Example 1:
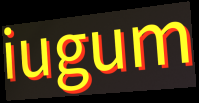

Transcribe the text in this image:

iugum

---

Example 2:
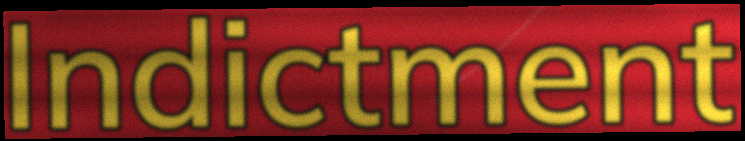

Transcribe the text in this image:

Indictment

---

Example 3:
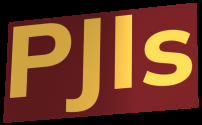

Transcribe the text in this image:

PJIs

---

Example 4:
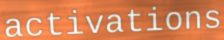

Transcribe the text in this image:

activations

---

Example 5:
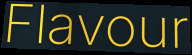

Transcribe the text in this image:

Flavour